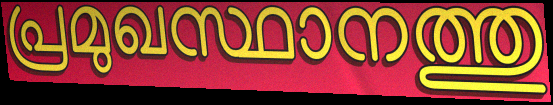
പ്രമുഖസ്ഥാനത്തു